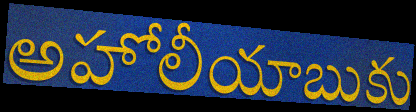
అహోలీయాబుకు